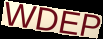
WDEP